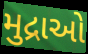
મુદ્રાઓ